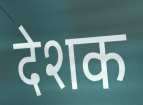
देशक